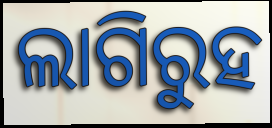
ଲାଗିରୁହ